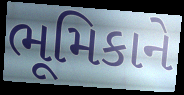
ભૂમિકાને